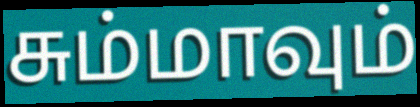
சும்மாவும்